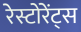
रेस्टोरेंट्स